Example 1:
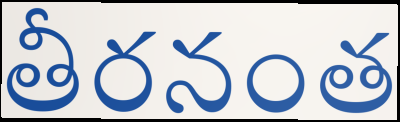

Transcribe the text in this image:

తీరనంత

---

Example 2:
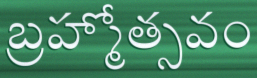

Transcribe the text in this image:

బ్రహ్మోత్సవం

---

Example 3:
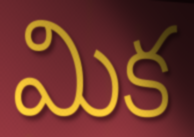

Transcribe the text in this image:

మిక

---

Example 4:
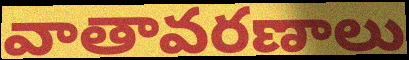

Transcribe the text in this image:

వాతావరణాలు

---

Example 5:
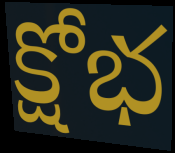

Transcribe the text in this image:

క్షోభ